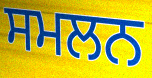
ਸਮਲਨ